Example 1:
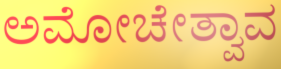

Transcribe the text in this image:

ಅಮೋಚೇತ್ವಾವ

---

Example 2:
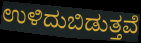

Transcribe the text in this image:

ಉಳಿದುಬಿಡುತ್ತವೆ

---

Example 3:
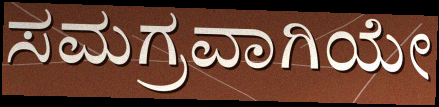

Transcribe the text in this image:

ಸಮಗ್ರವಾಗಿಯೇ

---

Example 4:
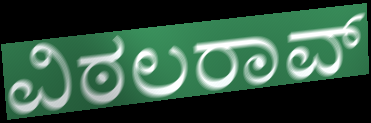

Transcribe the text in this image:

ವಿಠಲರಾವ್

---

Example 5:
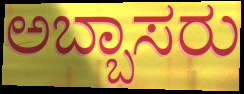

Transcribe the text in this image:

ಅಬ್ಬಾಸರು